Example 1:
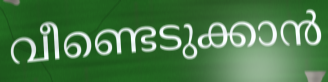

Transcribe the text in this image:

വീണ്ടെടുക്കാൻ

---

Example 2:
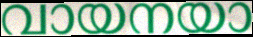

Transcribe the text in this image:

വായനയാ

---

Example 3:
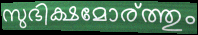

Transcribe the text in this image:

സുഭിക്ഷമോര്ത്തും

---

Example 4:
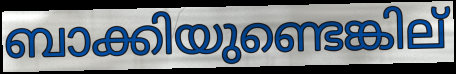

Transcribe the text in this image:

ബാക്കിയുണ്ടെങ്കില്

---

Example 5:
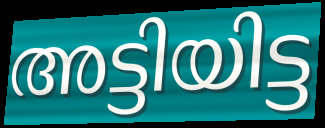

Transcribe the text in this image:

അട്ടിയിട്ട